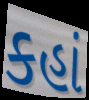
કહાં